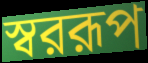
স্বররূপ